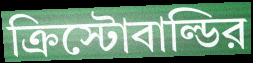
ক্রিস্টোবাল্ডির